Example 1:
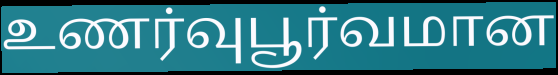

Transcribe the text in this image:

உணர்வுபூர்வமான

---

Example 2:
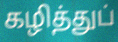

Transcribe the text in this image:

கழித்துப்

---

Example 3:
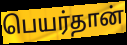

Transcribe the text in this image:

பெயர்தான்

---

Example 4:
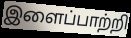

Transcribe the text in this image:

இளைப்பாற்றி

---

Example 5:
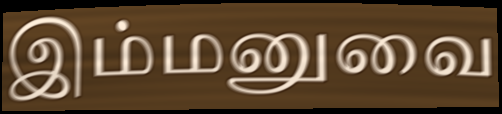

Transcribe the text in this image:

இம்மனுவை